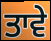
ਤਾਵੇ